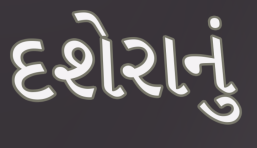
દશેરાનું